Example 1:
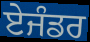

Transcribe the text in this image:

ਏਜੰਡਰ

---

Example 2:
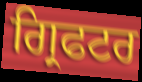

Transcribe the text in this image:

ਗ੍ਰਿਫਟਰ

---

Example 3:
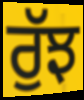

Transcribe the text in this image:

ਰੁੱਝ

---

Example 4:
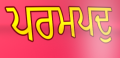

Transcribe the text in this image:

ਪਰਮਪਦੁ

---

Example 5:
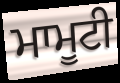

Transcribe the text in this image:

ਮਾਮੂਟੀ